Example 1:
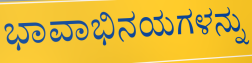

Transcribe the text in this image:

ಭಾವಾಭಿನಯಗಳನ್ನು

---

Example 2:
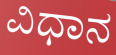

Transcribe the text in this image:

ವಿಧಾನ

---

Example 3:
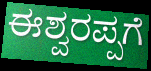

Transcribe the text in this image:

ಈಶ್ವರಪ್ಪಗೆ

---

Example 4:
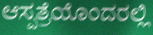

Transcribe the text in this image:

ಆಸ್ಪತ್ರೆಯೊಂದರಲ್ಲಿ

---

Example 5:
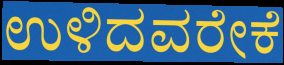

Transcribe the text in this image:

ಉಳಿದವರೇಕೆ